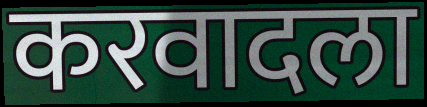
करवादला